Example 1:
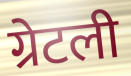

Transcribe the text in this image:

ग्रेटली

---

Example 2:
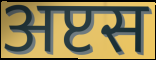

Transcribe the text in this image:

अप्टस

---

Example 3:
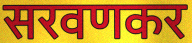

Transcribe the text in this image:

सरवणकर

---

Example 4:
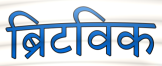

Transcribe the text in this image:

ब्रिटविक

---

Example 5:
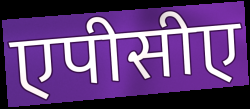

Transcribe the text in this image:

एपीसीए